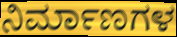
ನಿರ್ಮಾಣಗಳ